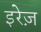
इरेज़